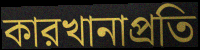
কারখানাপ্রতি